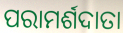
ପରାମର୍ଶଦାତା